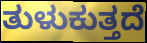
ತುಳುಕುತ್ತದೆ